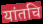
यांतचि